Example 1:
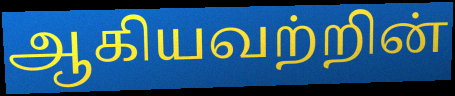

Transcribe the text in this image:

ஆகியவற்றின்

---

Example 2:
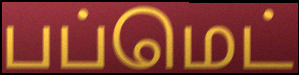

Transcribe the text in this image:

பப்மெட்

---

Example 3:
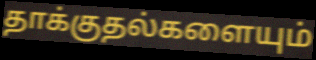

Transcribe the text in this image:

தாக்குதல்களையும்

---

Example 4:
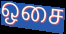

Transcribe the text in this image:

ஒசை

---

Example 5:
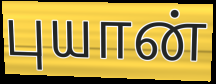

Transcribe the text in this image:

புயான்